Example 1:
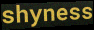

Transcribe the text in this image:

shyness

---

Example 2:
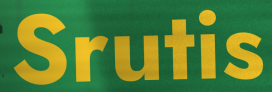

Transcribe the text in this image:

Srutis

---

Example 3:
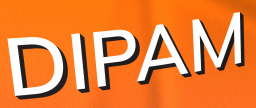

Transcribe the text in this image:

DIPAM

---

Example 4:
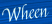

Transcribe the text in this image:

Wheen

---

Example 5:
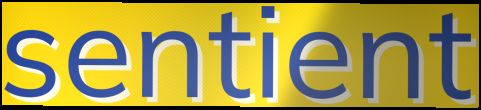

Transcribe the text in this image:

sentient